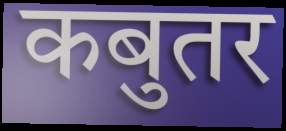
कबुतर